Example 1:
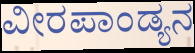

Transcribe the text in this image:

ವೀರಪಾಂಡ್ಯನ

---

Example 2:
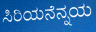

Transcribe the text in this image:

ಸಿರಿಯನೆನ್ನಯ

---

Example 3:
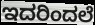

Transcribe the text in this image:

ಇದರಿಂದಲೆ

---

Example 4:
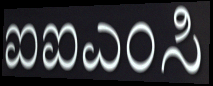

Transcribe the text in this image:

ಐಐಎಂಸಿ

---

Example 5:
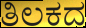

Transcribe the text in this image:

ತಿಲಕದ